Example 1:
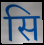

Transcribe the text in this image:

सि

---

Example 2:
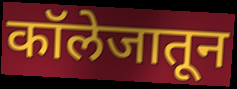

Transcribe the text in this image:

कॉलेजातून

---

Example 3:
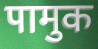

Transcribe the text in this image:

पामुक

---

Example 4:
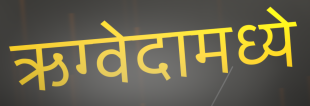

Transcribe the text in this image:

ऋग्वेदामध्ये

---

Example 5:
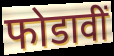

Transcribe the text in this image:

फोडावीं